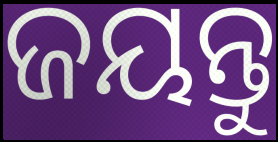
ଜୟନ୍ତୁ